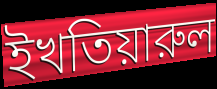
ইখতিয়ারুল